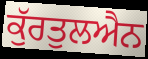
ਕੁੱਰਤੁਲਐਨ